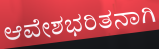
ಆವೇಶಭರಿತನಾಗಿ